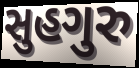
સુહગુરુ